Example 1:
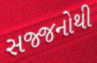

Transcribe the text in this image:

સજ્જનોથી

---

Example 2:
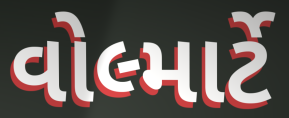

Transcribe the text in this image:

વોલ્માર્ટે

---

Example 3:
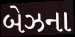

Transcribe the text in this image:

બેઝના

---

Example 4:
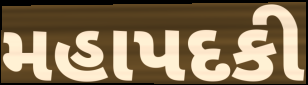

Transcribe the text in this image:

મહાપદકી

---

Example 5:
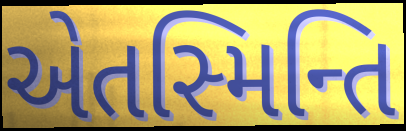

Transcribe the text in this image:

એતસ્મિન્તિ